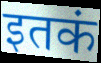
इतकं